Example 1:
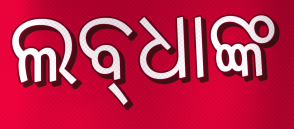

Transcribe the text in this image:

ଲବ୍‌ଧାଙ୍କ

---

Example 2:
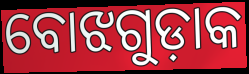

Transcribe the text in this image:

ବୋଝଗୁଡ଼ାକ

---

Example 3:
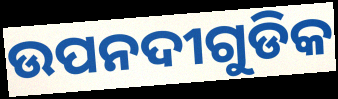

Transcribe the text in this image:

ଉପନଦୀଗୁଡିକ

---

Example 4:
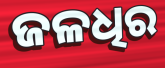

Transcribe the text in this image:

ଜଳଧିର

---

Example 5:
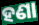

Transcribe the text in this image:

ହଣା